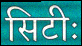
सिटीः